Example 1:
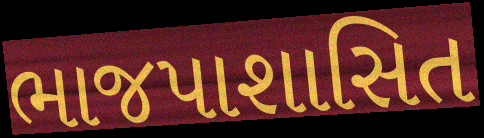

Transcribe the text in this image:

ભાજપાશાસિત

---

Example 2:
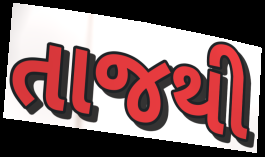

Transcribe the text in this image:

તાજથી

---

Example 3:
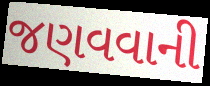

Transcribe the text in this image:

જણવવાની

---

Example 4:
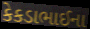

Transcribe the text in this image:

કેકડાભાઈના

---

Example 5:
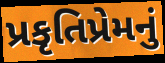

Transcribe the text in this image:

પ્રકૃતિપ્રેમનું